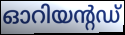
ഓറിയന്റഡ്